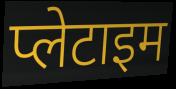
प्लेटाइम